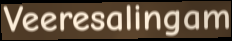
Veeresalingam